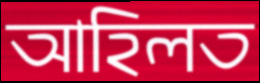
আহিলত